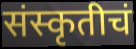
संस्कृतीचं